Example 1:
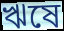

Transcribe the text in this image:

ঋষে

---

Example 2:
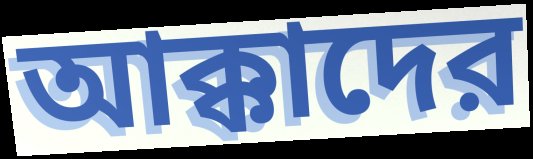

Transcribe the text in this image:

আক্কাদের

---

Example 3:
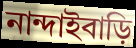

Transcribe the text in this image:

নান্দাইবাড়ি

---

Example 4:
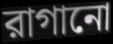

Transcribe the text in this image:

রাগানো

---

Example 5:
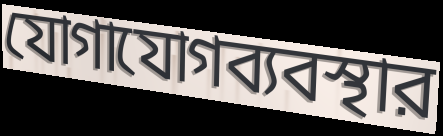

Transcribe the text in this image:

যোগাযোগব্যবস্থার